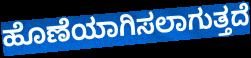
ಹೊಣೆಯಾಗಿಸಲಾಗುತ್ತದೆ